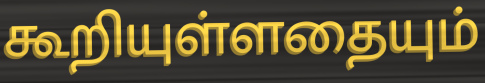
கூறியுள்ளதையும்